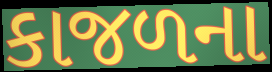
કાજળના